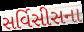
સર્વિસીસના